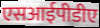
एसआईपीडीए